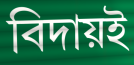
বিদায়ই